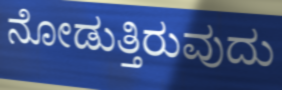
ನೋಡುತ್ತಿರುವುದು